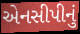
એનસીપીનું